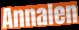
Annalen